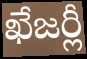
ఖేజర్లీ